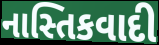
નાસ્તિકવાદી